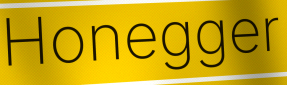
Honegger